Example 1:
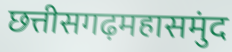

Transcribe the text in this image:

छत्तीसगढ़महासमुंद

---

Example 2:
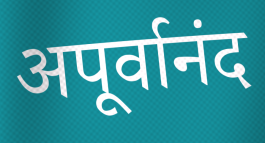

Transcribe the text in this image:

अपूर्वानंद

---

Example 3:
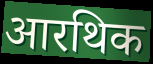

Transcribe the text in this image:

आरथिक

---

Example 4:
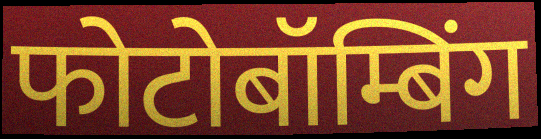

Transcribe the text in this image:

फोटोबॉम्बिंग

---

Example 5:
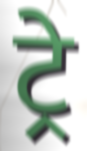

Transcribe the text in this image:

ट्रे